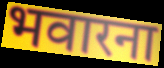
भवारना